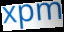
xpm